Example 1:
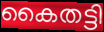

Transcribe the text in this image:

കൈതട്ടി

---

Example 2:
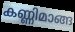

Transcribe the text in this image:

കണ്ണിമാങ്ങ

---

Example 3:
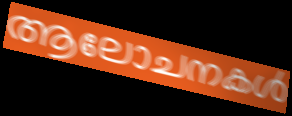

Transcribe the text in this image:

ആലോചനകൾ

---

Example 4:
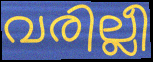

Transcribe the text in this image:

വരില്ലീ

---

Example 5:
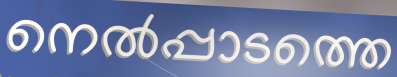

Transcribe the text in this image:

നെൽപ്പാടത്തെ